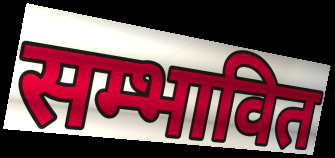
सम्भावित